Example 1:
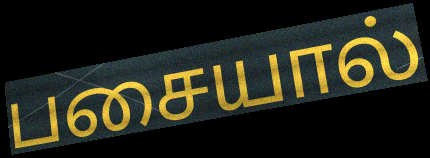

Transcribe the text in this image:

பசையால்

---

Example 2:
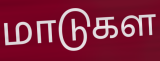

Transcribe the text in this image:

மாடுகள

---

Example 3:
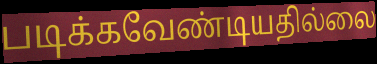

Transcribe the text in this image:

படிக்கவேண்டியதில்லை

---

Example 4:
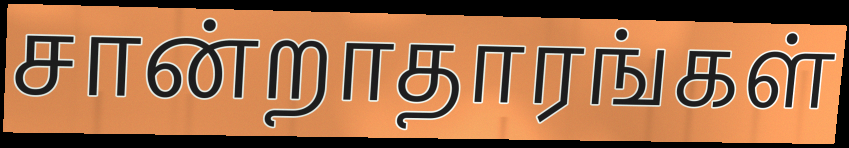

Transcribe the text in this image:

சான்றாதாரங்கள்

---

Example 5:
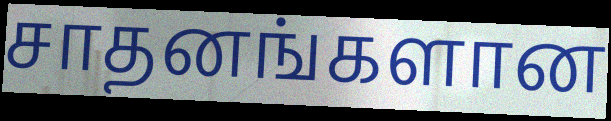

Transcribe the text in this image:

சாதனங்களான